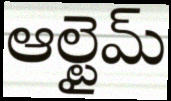
ఆల్టైమ్